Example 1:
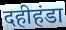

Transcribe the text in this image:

दहीहंडा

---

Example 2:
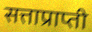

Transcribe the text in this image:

सत्ताप्राप्ती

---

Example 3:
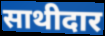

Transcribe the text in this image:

साथीदार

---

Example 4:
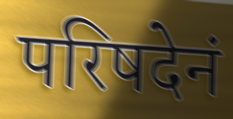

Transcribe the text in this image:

परिषदेनं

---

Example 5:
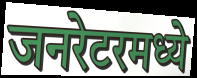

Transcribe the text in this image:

जनरेटरमध्ये